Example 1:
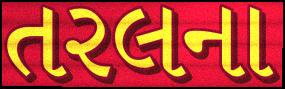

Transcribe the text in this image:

તરલના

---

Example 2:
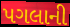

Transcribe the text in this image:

પગલાની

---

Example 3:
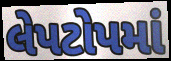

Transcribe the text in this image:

લેપટોપમાં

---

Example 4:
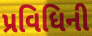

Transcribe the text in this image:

પ્રવિધિની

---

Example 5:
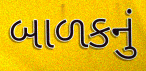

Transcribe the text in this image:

બાળકનું